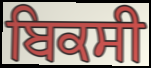
ਬਿਕਸੀ